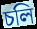
চলি